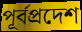
পূর্বপ্রদেশ